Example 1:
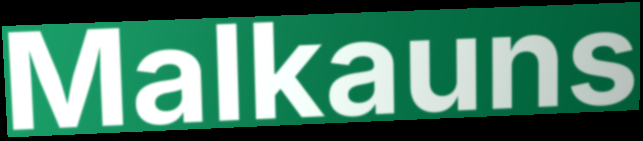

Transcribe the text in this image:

Malkauns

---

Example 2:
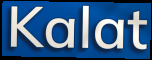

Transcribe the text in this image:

Kalat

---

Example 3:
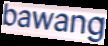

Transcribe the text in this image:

bawang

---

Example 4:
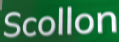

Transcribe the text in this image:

Scollon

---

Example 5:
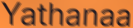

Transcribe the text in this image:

Yathanaa